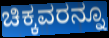
ಚಿಕ್ಕವರನ್ನೂ